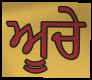
ਅੂਚੇ